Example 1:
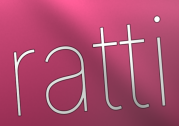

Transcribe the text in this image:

ratti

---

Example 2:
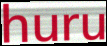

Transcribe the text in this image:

huru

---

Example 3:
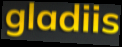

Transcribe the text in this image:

gladiis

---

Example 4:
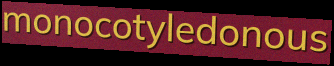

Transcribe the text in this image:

monocotyledonous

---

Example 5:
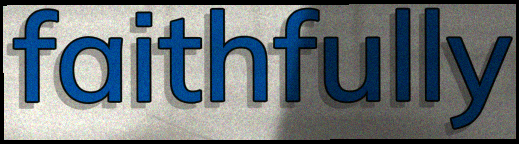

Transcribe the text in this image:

faithfully